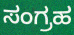
ಸಂಗ್ರಹ